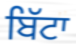
ਬਿੱਟਾ